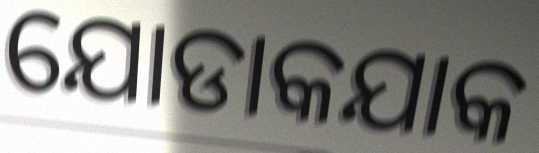
ଯୋଡାକଯାକ